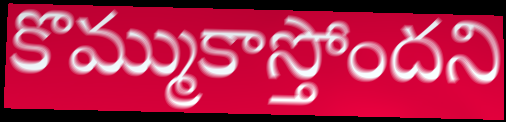
కొమ్ముకాస్తోందని